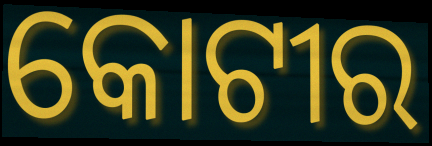
କୋଟୀର